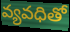
వ్యవధితో